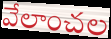
వేలాంచల